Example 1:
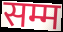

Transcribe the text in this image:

सम्म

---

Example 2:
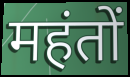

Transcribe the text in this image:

महंतों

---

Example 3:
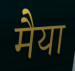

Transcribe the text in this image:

मैया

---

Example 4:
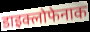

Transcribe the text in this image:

डाइक्लोफेनाक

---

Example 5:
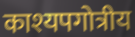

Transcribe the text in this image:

काश्यपगोत्रीय